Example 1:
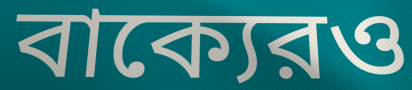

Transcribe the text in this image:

বাক্যেরও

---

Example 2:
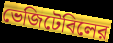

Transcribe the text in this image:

ভেজিটেবিলের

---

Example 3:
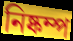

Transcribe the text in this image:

নিষ্কম্প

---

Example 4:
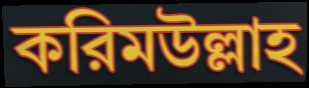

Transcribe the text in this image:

করিমউল্লাহ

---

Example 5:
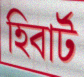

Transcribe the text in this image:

হিবার্ট